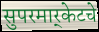
सुपरमार्केटचे